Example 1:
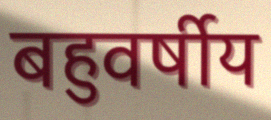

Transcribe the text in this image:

बहुवर्षीय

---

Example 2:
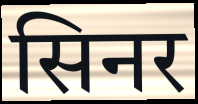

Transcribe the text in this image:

सिनर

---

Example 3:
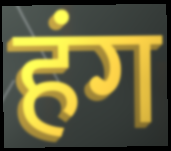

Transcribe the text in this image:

हंग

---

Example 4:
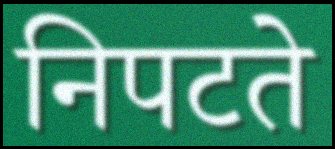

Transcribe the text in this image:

निपटते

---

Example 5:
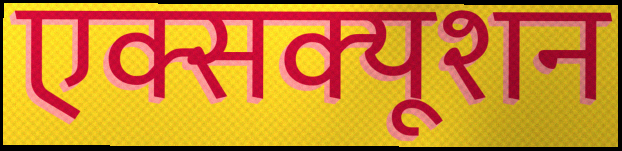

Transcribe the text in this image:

एक्सक्यूशन